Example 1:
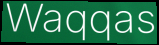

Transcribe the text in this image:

Waqqas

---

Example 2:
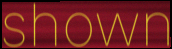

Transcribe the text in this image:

shown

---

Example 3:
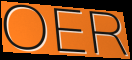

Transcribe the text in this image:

OER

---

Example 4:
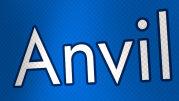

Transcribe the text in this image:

Anvil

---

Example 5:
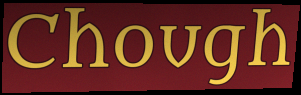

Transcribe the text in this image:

Chough